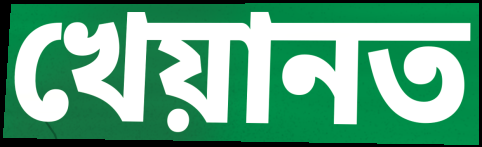
খেয়ানত